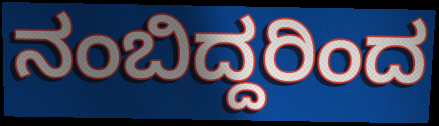
ನಂಬಿದ್ದರಿಂದ